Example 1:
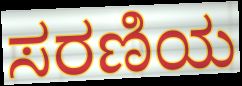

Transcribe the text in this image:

ಸರಣಿಯ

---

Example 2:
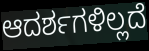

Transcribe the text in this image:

ಆದರ್ಶಗಳಿಲ್ಲದೆ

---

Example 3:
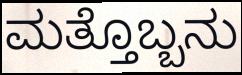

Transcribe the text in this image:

ಮತ್ತೊಬ್ಬನು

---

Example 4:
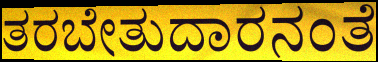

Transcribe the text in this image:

ತರಬೇತುದಾರನಂತೆ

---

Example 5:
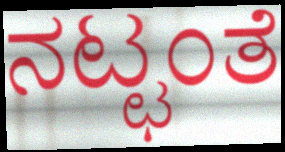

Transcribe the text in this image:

ನಟ್ಟಂತೆ